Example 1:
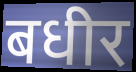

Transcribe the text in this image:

बधीर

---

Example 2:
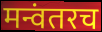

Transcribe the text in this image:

मन्वंतरच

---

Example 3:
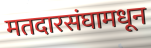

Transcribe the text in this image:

मतदारसंघामधून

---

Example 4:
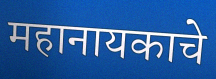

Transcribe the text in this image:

महानायकाचे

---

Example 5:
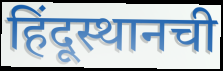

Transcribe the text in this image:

हिंदूस्थानची